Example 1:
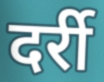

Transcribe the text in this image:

दर्री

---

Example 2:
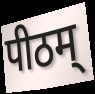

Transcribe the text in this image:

पीठम्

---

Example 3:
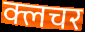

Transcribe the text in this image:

क्लचर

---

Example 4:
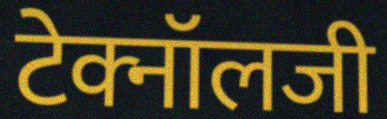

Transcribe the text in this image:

टेक्‍नॉलजी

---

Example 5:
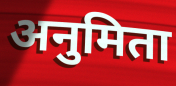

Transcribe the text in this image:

अनुमिता